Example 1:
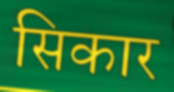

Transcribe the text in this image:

सिकार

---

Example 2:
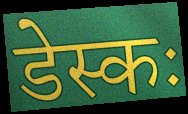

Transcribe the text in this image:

डेस्कः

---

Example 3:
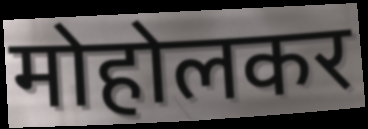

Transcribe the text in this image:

मोहोलकर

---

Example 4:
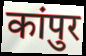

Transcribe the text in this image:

कांपुर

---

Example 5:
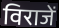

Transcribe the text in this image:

विराजें